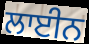
ਲਾਈਨ